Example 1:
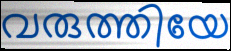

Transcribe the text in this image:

വരുത്തിയേ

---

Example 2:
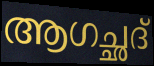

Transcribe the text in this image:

ആഗച്ഛദ്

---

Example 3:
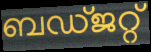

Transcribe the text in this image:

ബഡ്ജറ്റ്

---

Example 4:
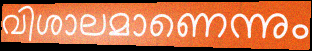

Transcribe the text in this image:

വിശാലമാണെന്നും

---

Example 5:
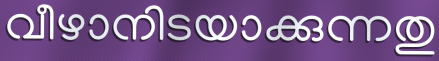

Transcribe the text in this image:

വീഴാനിടയാക്കുന്നതു